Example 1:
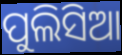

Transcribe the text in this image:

ପୁଲିସିଆ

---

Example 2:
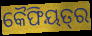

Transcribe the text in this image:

କୈଫିୟତ୍‌ର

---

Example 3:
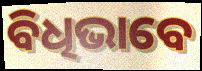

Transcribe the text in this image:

ବିଧିଭାବେ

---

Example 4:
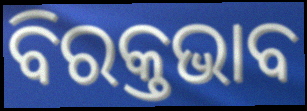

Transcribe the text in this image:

ବିରକ୍ତଭାବ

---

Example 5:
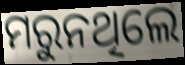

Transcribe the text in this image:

ମରୁନଥିଲେ